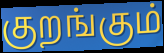
குறங்கும்